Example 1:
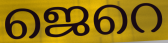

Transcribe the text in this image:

ജെറെ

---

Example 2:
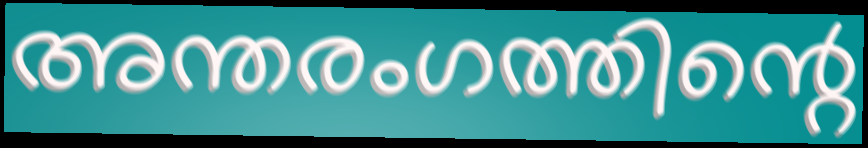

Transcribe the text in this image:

അന്തരംഗത്തിന്റെ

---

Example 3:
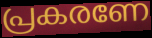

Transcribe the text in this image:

പ്രകരണേ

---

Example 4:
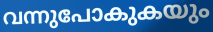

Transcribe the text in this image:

വന്നുപോകുകയും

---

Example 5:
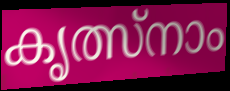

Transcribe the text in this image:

കൃത്സ്നാം